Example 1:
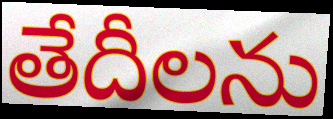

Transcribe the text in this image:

తేదీలను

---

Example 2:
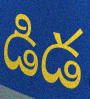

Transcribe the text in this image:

డిడ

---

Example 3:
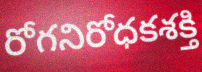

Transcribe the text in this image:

రోగనిరోధకశక్తి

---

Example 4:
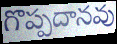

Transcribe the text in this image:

గొప్పదానవు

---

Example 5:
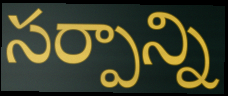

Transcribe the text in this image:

సర్పాన్ని